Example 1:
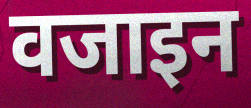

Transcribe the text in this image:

वजाइन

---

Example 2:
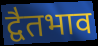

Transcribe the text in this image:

द्वैतभाव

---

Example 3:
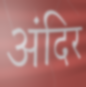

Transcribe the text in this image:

अंदिर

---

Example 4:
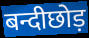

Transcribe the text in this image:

बन्दीछोड़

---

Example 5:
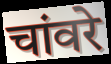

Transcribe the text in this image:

चांवरे